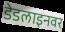
डेडलाइनवर